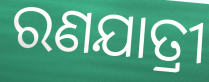
ରଣଯାତ୍ରୀ